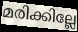
മരിക്കില്ലേ